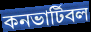
কনভার্টিবল